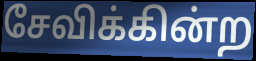
சேவிக்கின்ற